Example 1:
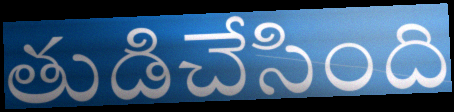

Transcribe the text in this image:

తుడిచేసింది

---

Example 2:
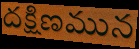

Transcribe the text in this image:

దక్షిణమున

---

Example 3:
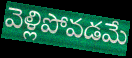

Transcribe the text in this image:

వెళ్లిపోవడమే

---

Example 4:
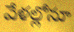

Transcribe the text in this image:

వేళల్లోనూ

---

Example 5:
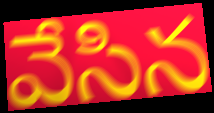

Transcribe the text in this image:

వేసిన